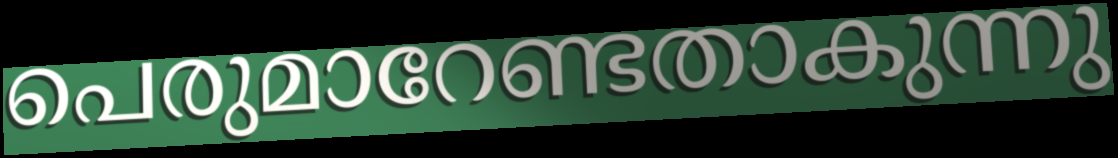
പെരുമാറേണ്ടതാകുന്നു